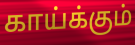
காய்க்கும்